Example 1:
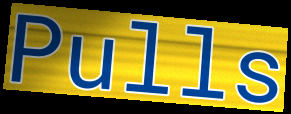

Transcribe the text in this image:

Pulls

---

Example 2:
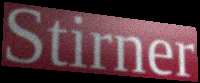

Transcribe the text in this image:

Stirner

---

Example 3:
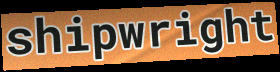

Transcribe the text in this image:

shipwright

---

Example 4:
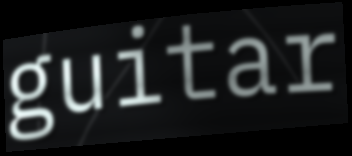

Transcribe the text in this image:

guitar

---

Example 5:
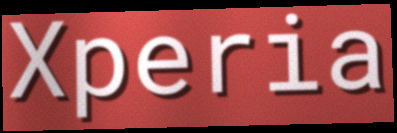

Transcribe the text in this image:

Xperia